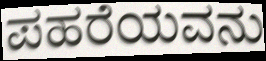
ಪಹರೆಯವನು